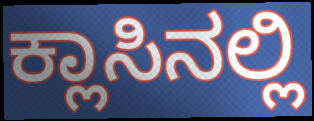
ಕ್ಲಾಸಿನಲ್ಲಿ